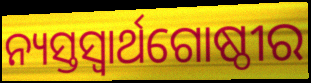
ନ୍ୟସ୍ତସ୍ୱାର୍ଥଗୋଷ୍ଠୀର